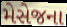
મેસેજના